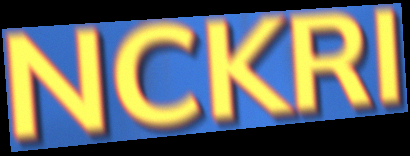
NCKRI